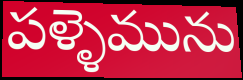
పళ్ళెమును